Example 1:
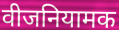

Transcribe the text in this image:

वीजनियामक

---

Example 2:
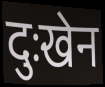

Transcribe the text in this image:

दुःखेन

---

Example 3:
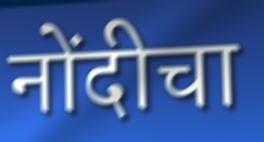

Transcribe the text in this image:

नोंदीचा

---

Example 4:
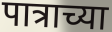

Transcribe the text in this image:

पात्राच्या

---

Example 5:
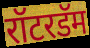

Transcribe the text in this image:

रॉटरडॅम